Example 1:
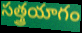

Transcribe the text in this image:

సత్త్రయాగం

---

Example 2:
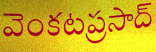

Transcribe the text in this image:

వెంకటప్రసాద్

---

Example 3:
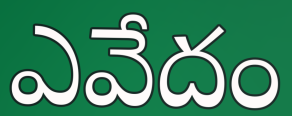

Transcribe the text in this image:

ఎవేదం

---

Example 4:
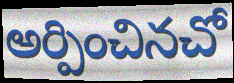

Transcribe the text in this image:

అర్పించినచో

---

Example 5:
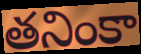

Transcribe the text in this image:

తనింకా